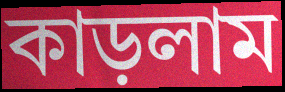
কাড়লাম